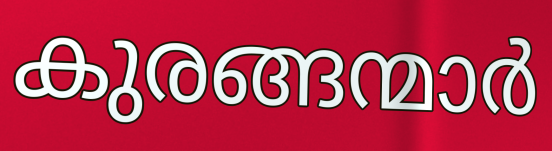
കുരങ്ങന്മാർ